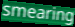
smearing